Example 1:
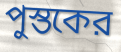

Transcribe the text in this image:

পুস্তকের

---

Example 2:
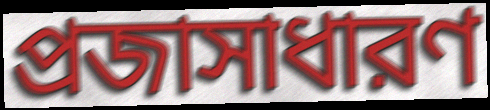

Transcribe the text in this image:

প্রজাসাধারণ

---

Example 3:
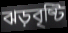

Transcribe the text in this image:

ঝড়বৃষ্টি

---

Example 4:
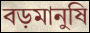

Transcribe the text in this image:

বড়মানুষি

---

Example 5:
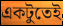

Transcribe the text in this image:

একটুতেই